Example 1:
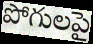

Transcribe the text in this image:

పోగులపై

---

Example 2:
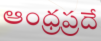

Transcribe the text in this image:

ఆంధ్రప్రదే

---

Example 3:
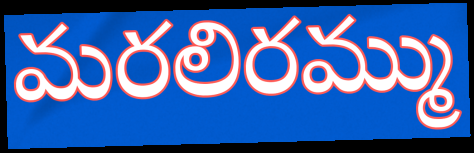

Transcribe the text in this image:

మరలిరమ్ము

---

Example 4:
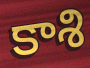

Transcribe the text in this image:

కాశి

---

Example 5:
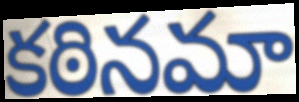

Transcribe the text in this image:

కఠినమా